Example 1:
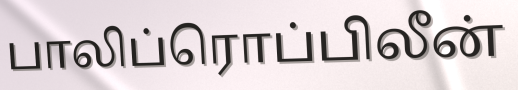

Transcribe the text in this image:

பாலிப்ரொப்பிலீன்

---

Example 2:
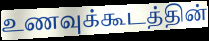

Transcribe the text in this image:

உணவுக்கூடத்தின்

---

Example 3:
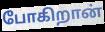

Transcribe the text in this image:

போகிறான்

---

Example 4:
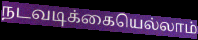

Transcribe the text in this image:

நடவடிக்கையெல்லாம்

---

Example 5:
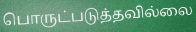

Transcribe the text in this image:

பொருட்படுத்தவில்லை